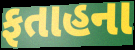
ફતાહના